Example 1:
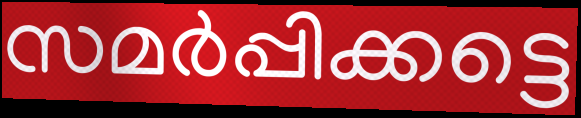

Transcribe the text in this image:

സമർപ്പിക്കട്ടെ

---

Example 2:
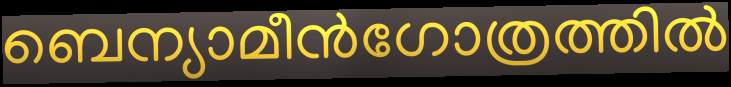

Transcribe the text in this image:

ബെന്യാമീൻഗോത്രത്തിൽ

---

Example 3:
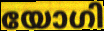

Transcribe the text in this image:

യോഗി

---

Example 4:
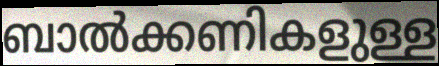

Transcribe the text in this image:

ബാൽക്കണികളുള്ള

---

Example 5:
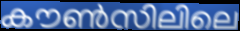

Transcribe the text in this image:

കൗൺസിലിലെ